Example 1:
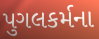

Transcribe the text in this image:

પુગલકર્મના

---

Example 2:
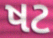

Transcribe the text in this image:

ષટ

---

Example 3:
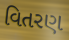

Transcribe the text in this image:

વિતરણ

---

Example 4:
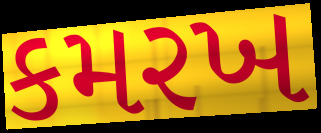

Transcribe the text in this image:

કમરખ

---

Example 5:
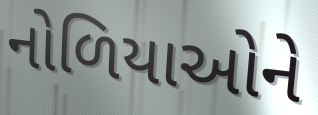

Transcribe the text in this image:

નોળિયાઓને